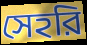
সেহরি